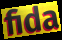
fida